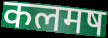
कलमष